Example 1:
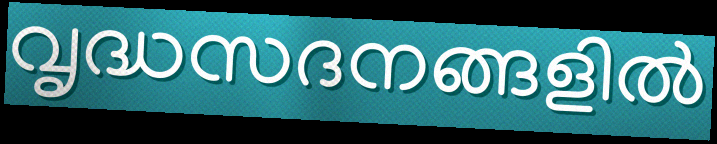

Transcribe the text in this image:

വൃദ്ധസദനങ്ങളിൽ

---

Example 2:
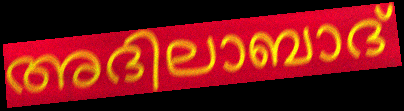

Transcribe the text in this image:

അദിലാബാദ്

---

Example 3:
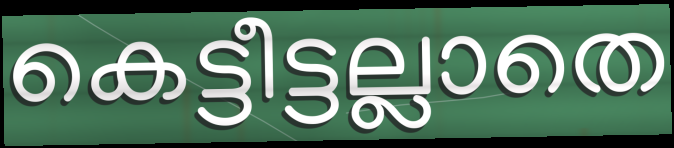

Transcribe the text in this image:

കെട്ടീട്ടല്ലാതെ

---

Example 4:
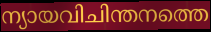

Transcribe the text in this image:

ന്യായവിചിന്തനത്തെ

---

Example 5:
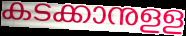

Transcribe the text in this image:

കടക്കാനുളള